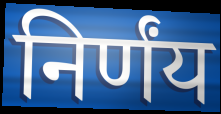
निर्णंय